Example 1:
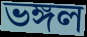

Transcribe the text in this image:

ভঙ্গল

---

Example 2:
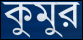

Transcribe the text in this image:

কুমুর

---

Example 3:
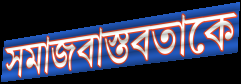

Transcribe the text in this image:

সমাজবাস্তবতাকে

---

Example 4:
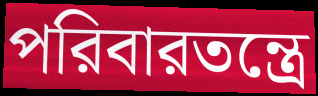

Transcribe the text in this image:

পরিবারতন্ত্রে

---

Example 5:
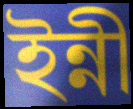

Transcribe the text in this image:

ইন্নী